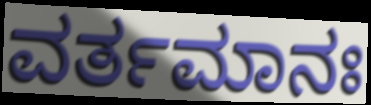
ವರ್ತಮಾನಃ